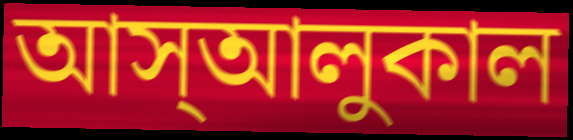
আস্আলুকাল